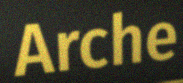
Arche